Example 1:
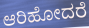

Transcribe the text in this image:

ಆರಿಹೋದರೆ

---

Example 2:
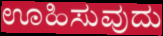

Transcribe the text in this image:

ಊಹಿಸುವುದು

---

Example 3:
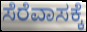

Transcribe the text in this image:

ಸೆರೆವಾಸಕ್ಕೆ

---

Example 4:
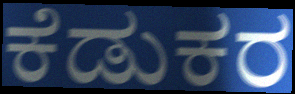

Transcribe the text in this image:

ಕೆಡುಕರ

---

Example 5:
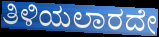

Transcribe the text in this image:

ತಿಳಿಯಲಾರದೇ